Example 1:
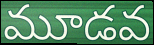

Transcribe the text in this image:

మూడవ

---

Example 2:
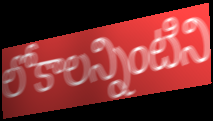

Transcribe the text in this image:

లోకాలన్నింటిని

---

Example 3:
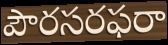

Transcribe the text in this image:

పౌరసరఫరా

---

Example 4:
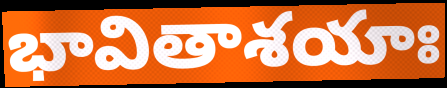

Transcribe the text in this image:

భావితాశయాః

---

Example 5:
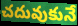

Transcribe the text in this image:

చదువుకునే